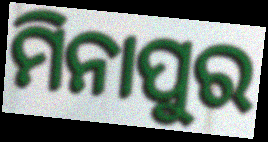
ମିନାପୁର